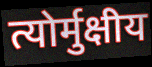
त्योर्मुक्षीय